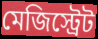
মেজিস্ট্রেট